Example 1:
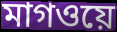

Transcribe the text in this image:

মাগওয়ে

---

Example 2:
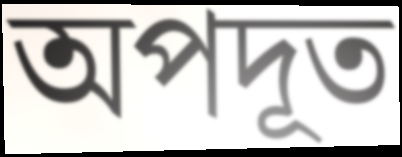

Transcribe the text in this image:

অপদূত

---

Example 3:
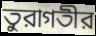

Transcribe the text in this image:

তুরাগতীর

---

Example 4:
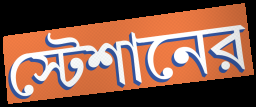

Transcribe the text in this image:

স্টেশানের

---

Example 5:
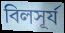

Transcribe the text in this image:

বিলসূর্য